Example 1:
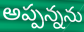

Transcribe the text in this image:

అప్పన్నను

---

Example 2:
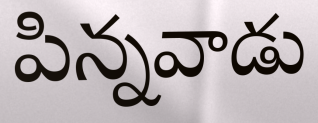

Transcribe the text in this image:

పిన్నవాడు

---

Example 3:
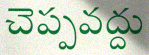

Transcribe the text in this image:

చెప్పవద్దు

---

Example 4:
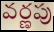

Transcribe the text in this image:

వర్ణపు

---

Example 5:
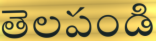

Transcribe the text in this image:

తెలపండి